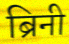
ब्रिनी